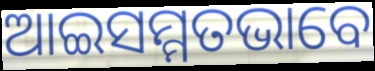
ଆଇସମ୍ମତଭାବେ